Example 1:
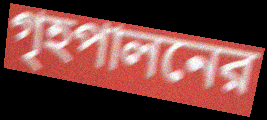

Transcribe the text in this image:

গৃহপালনের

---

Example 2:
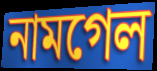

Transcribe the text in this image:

নামগেল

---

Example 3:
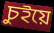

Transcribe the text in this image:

চুইয়ে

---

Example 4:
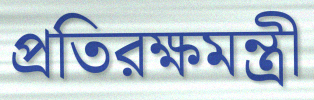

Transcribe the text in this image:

প্রতিরক্ষমন্ত্রী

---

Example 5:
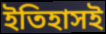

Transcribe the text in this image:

ইতিহাসই